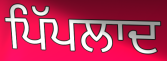
ਪਿੱਪਲਾਦ